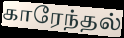
காரேந்தல்